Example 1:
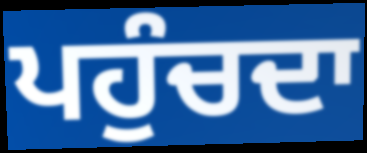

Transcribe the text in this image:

ਪਹੁੰਚਦਾ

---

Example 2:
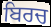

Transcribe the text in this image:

ਬਿਰਚ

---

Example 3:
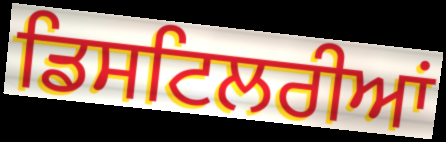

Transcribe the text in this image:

ਡਿਸਟਿਲਰੀਆਂ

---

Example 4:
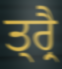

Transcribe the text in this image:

ਤ੍ਰ੍ਰੈ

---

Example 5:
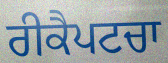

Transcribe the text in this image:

ਰੀਕੈਪਟਚਾ